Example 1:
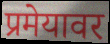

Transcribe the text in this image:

प्रमेयावर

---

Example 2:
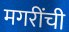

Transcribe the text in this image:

मगरींची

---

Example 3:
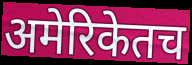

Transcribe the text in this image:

अमेरिकेतच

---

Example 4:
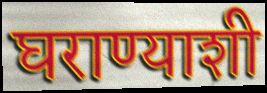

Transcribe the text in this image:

घराण्याशी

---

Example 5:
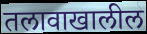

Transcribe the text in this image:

तलावाखालील